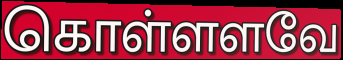
கொள்ளளவே